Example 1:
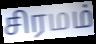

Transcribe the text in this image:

சிரமம்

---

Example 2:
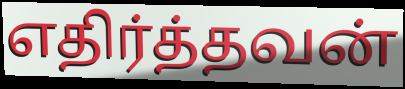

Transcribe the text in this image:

எதிர்த்தவன்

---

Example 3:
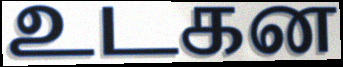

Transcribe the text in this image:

உடகன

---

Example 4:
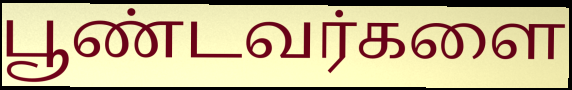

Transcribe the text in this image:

பூண்டவர்களை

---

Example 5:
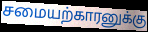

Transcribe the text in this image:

சமையற்காரனுக்கு